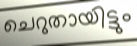
ചെറുതായിട്ടും